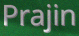
Prajin